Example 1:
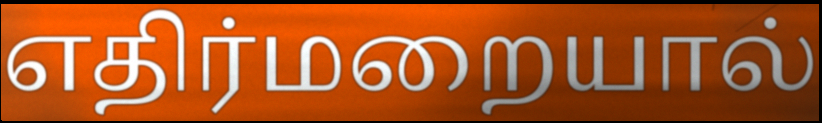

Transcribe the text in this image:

எதிர்மறையால்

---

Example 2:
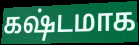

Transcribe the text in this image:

கஷ்டமாக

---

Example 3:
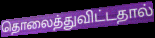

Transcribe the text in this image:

தொலைத்துவிட்டதால்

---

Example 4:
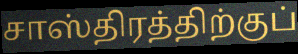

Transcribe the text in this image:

சாஸ்திரத்திற்குப்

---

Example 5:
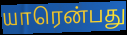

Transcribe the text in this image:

யாரென்பது